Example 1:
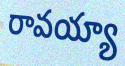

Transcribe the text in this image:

రావయ్యా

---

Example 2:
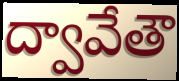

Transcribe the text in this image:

ద్వావేతౌ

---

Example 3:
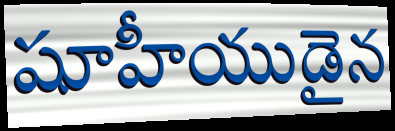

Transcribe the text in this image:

షూహీయుడైన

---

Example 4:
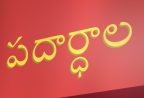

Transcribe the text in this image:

పదార్ధాల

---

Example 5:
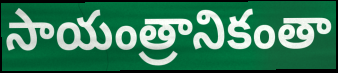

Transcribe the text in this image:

సాయంత్రానికంతా